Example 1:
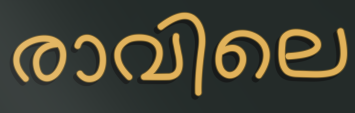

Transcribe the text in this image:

രാവിലെ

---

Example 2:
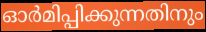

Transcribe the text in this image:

ഓർമിപ്പിക്കുന്നതിനും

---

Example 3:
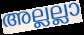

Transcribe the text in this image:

അല്ലല്ലാ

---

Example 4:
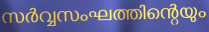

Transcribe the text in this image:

സർവ്വസംഘത്തിന്റെയും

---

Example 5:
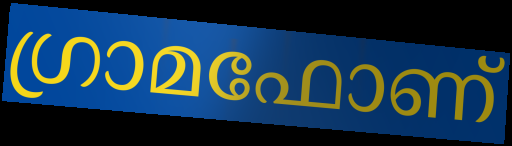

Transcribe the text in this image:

ഗ്രാമഫോണ്